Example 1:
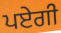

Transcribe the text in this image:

ਪਏਗੀ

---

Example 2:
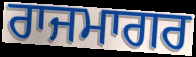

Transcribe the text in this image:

ਰਾਜਮਾਗਰ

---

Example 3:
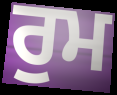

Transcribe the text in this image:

ਰੁਮ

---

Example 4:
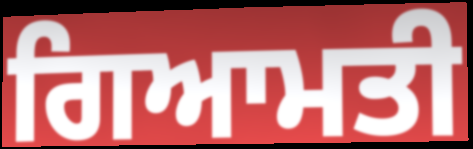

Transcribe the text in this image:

ਗਿਆਮਤੀ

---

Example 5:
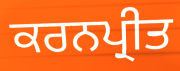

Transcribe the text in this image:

ਕਰਨਪ੍ਰੀਤ